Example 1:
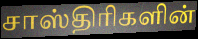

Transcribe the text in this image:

சாஸ்திரிகளின்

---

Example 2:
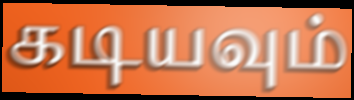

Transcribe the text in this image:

கடியவும்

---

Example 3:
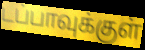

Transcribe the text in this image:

டப்பாவுக்குள்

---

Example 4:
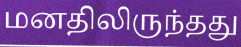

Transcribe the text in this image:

மனதிலிருந்தது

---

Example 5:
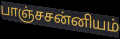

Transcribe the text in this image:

பாஞ்சசன்னியம்